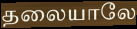
தலையாலே